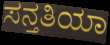
ಸನ್ತತಿಯಾ